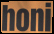
honi